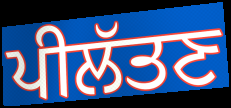
ਪੀਲੱਤਣ